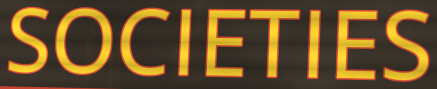
SOCIETIES